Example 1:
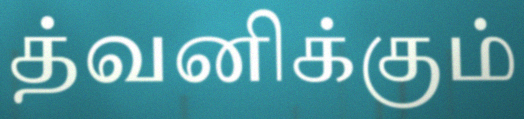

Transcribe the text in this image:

த்வனிக்கும்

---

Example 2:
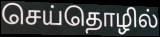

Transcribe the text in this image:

செய்தொழில்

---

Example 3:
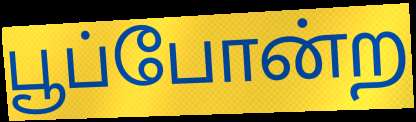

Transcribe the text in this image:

பூப்போன்ற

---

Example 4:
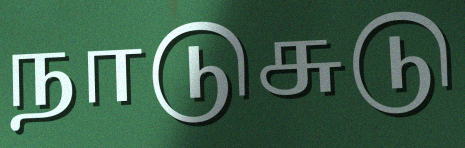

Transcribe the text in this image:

நாடுசுடு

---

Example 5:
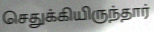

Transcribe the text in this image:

செதுக்கியிருந்தார்